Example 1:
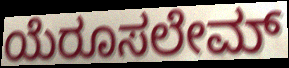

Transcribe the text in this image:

ಯೆರೂಸಲೇಮ್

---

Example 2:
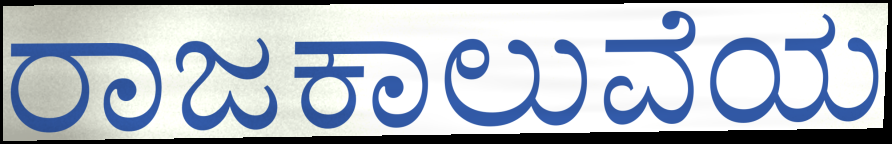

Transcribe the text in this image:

ರಾಜಕಾಲುವೆಯ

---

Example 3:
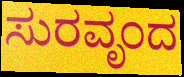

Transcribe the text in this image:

ಸುರವೃಂದ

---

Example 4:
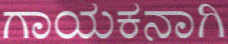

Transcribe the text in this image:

ಗಾಯಕನಾಗಿ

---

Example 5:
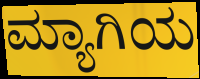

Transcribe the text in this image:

ಮ್ಯಾಗಿಯ